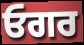
ਓਗਰ